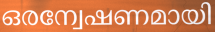
ഒരന്വേഷണമായി